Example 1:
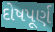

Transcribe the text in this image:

દોષપૂર્ણ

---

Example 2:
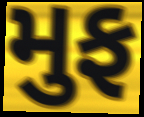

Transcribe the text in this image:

મુફ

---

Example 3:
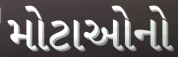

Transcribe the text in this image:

મોટાઓનો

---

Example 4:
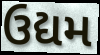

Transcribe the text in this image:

ઉદ્યમ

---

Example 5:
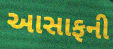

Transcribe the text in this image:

આસાફની